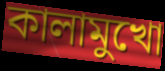
কালামুখো